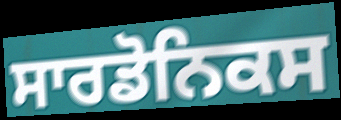
ਸਾਰਡੋਨਿਕਸ